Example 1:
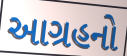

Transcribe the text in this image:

આગ્રહનો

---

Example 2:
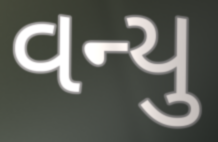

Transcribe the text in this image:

વન્યુ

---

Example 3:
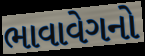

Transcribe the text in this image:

ભાવાવેગનો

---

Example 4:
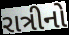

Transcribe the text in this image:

રાત્રીનો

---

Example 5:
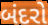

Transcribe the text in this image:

બંદરો